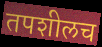
तपशीलच